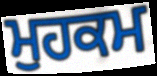
ਮੁਹਕਮ